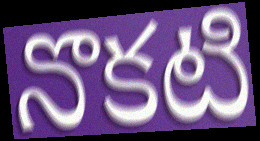
నొకటి